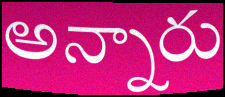
అన్నారు